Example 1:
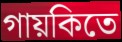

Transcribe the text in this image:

গায়কিতে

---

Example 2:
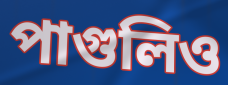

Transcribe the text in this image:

পাগুলিও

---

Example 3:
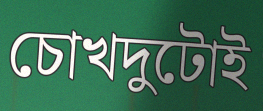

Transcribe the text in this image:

চোখদুটোই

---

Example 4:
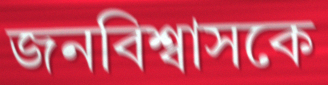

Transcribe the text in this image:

জনবিশ্বাসকে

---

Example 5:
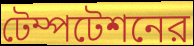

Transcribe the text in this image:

টেম্পটেশনের